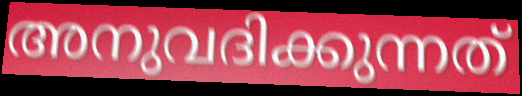
അനുവദിക്കുന്നത്